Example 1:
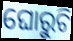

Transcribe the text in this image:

ଘୋରୁଚି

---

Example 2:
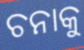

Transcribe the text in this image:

ଚନାକୁ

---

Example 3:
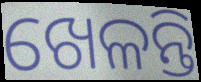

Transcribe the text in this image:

ଖେଳନ୍ତି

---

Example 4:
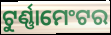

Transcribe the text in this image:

ଟୁର୍ଣ୍ଣାମେଂଟର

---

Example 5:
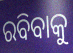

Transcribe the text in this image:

ରବିବାକୁ